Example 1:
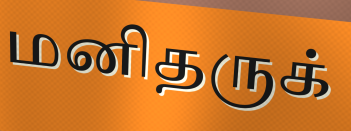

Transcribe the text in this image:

மனிதருக்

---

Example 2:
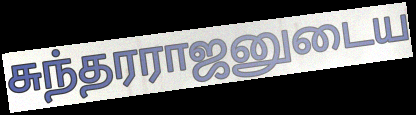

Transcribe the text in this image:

சுந்தரராஜனுடைய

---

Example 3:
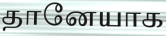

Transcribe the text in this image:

தானேயாக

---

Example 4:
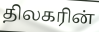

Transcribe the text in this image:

திலகரின்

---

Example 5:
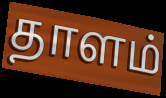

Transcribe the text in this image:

தாளம்